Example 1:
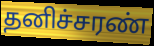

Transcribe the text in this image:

தனிச்சரண்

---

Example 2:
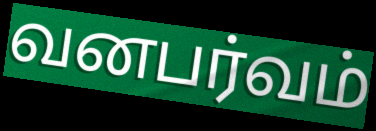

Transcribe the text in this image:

வனபர்வம்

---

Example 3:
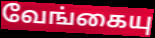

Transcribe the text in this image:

வேங்கையு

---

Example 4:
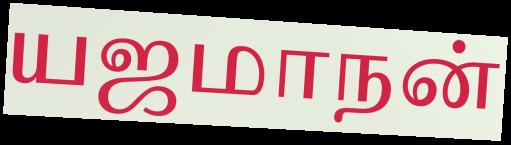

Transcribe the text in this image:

யஜமாநன்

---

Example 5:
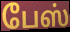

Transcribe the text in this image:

பேஸ்